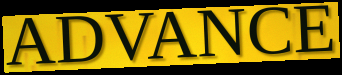
ADVANCE